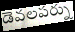
డెవలపర్ను